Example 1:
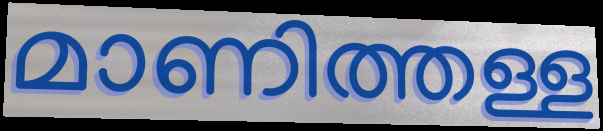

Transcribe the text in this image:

മാണിത്തള്ള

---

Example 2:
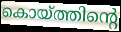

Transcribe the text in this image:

കൊയ്ത്തിന്റെ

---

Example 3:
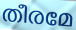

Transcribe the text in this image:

തീരമേ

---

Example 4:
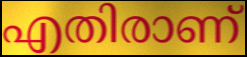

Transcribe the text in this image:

എതിരാണ്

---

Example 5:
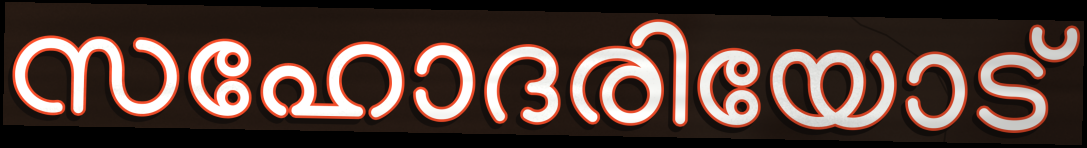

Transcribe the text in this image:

സഹോദരിയോട്